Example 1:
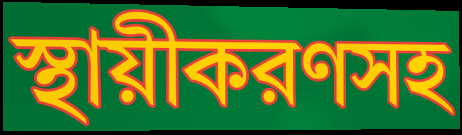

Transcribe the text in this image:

স্থায়ীকরণসহ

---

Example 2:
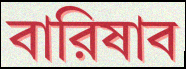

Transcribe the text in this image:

বারিষাব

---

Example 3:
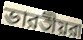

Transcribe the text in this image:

ভারতীয়রা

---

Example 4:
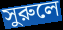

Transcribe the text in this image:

সুরুলে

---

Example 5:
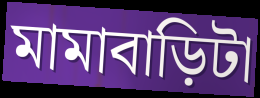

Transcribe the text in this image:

মামাবাড়িটা